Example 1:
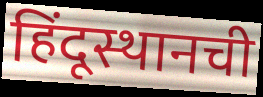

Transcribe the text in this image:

हिंदूस्थानची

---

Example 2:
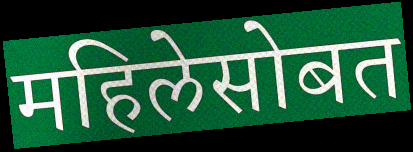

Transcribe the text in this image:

महिलेसोबत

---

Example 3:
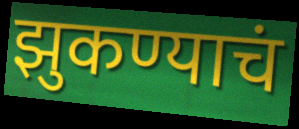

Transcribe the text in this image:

झुकण्याचं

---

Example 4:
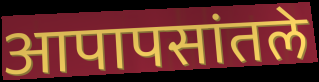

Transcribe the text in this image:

आपापसांतले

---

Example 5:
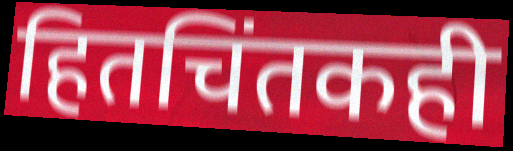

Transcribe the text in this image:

हितचिंतकही